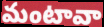
మంటావా